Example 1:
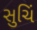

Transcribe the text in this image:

સુચિં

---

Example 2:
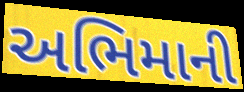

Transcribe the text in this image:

અભિમાની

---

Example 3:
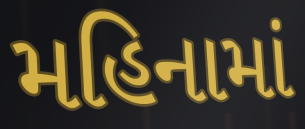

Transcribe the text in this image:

મહિનામાં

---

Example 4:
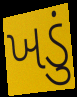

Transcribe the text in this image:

ખડું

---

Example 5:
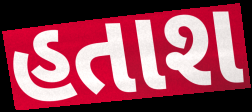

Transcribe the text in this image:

હતાશ